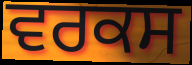
ਵਰਕਸ